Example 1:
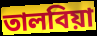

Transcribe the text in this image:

তালবিয়া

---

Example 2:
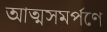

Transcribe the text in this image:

আত্মসমর্পণে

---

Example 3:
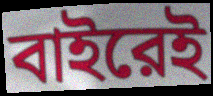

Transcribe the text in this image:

বাইরেই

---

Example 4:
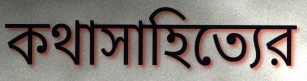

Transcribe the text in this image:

কথাসাহিত্যের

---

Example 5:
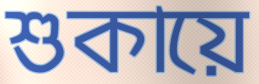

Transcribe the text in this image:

শুকায়ে